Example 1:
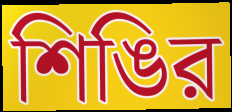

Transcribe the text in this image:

শিঙির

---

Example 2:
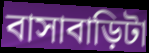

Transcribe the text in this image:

বাসাবাড়িটা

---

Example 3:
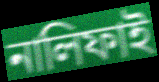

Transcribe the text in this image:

নালিফাই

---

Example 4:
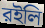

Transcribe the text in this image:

রইলি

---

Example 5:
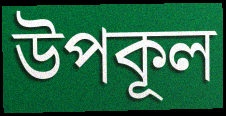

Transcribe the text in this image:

উপকূল